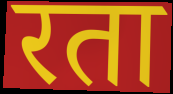
रता